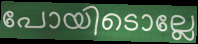
പോയിടൊല്ലേ